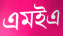
এমইএ